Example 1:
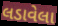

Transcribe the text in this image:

લડાવેલા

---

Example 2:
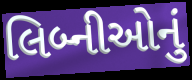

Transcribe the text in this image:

લિબ્નીઓનું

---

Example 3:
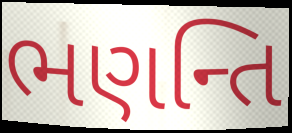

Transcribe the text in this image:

ભણન્તિ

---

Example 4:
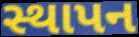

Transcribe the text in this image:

સ્થાપન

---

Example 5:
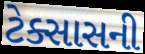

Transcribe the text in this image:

ટેક્સાસની